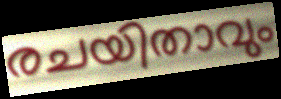
രചയിതാവും